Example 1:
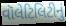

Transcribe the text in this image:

વૉલેટિલિટીનું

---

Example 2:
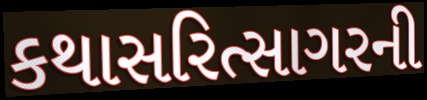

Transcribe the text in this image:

કથાસરિત્સાગરની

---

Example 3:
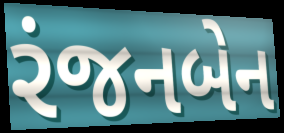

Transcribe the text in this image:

રંજનબેન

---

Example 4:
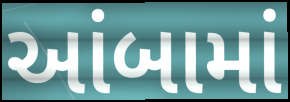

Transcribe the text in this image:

આંબામાં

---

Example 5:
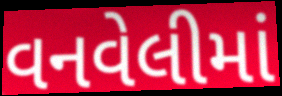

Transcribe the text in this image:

વનવેલીમાં